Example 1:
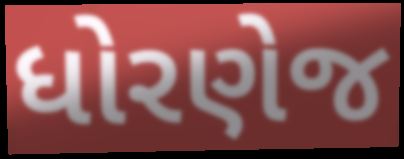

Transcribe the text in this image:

ધોરણેજ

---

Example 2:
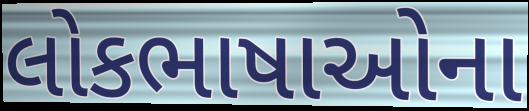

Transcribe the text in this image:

લોકભાષાઓના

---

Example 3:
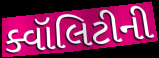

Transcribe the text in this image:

ક્વૉલિટીની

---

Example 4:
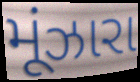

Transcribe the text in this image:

મૂંઝારા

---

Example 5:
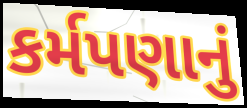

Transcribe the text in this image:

કર્મપણાનું